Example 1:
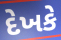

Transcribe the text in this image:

દેખકે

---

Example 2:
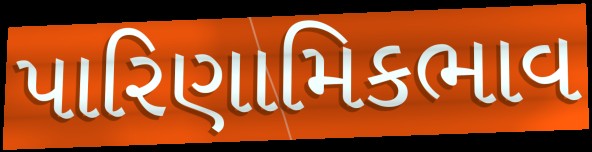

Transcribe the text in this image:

પારિણામિકભાવ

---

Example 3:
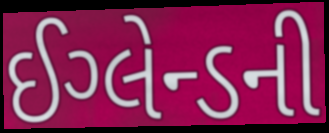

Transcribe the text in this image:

ઈગ્લેન્ડની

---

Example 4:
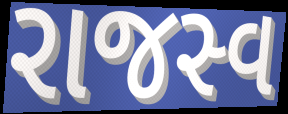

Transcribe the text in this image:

રાજસ્વ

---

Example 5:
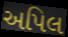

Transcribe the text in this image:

અપિલ